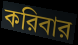
করিবার